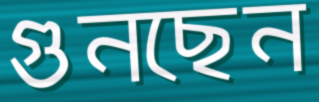
গুনছেন